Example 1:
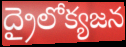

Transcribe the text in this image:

ద్రైలోక్యజన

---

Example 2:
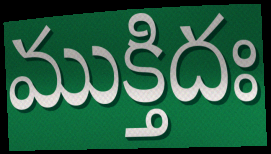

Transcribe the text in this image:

ముక్తిదః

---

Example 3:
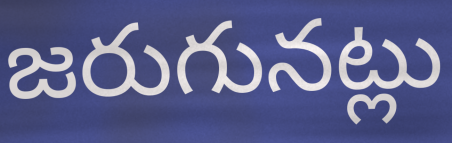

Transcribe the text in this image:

జరుగునట్లు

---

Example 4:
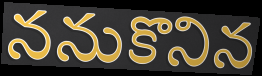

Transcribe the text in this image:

ననుకొనిన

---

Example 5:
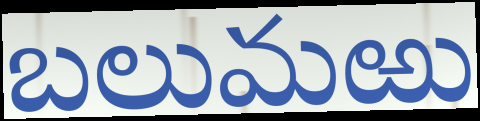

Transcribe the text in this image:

బలుమఱు